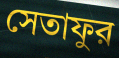
সেতাফুর